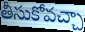
తీసుకోవచ్చా